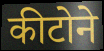
कीटोने